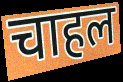
चाहल